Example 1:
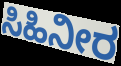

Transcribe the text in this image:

ಸಿಹಿನೀರ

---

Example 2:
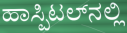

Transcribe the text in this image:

ಹಾಸ್ಪಿಟಲ್‌ನಲ್ಲಿ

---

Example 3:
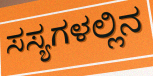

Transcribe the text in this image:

ಸಸ್ಯಗಳಲ್ಲಿನ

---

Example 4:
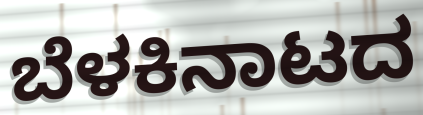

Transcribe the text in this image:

ಬೆಳಕಿನಾಟದ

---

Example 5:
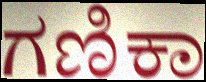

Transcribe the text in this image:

ಗಣಿಕಾ